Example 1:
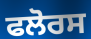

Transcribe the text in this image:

ਫਲੋਰਸ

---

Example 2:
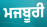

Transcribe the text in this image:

ਮਜਬੂਰੀ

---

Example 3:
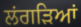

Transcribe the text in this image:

ਲਂਗੜਿਆਂ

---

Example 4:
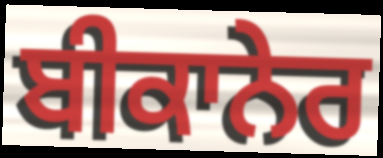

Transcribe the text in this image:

ਬੀਕਾਨੇਰ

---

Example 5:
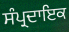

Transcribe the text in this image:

ਸੰਪ੍ਰਦਾਇਕ